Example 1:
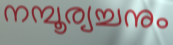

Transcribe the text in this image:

നമ്പൂര്യച്ചനും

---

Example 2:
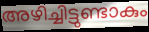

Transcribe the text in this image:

അഴിച്ചിട്ടുണ്ടാകും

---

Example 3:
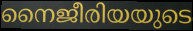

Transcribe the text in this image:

നൈജീരിയയുടെ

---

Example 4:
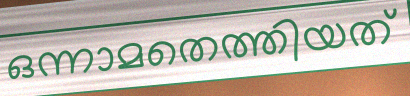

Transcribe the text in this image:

ഒന്നാമതെത്തിയത്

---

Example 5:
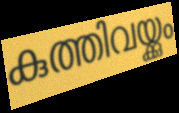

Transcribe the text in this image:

കുത്തിവയ്ക്കും